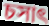
চসাৎ